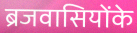
ब्रजवासियोंके